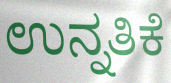
ಉನ್ನತಿಕೆ